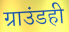
ग्राउंडही